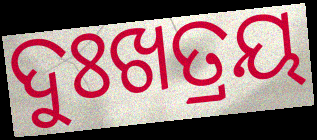
ଦୁଃଖତ୍ରୟ